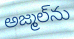
అజ్మల్‌ను